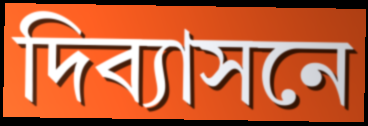
দিব্যাসনে